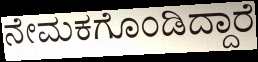
ನೇಮಕಗೊಂಡಿದ್ದಾರೆ